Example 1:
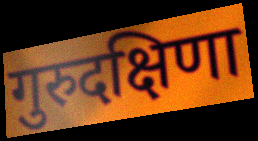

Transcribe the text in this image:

गुरुदक्षिणा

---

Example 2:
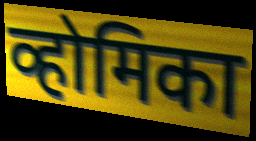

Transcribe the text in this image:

व्होमिका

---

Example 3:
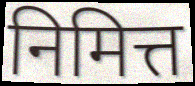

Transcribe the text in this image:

निमित्त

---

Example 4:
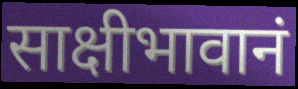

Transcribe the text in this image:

साक्षीभावानं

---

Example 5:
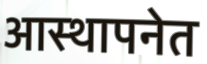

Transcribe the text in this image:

आस्थापनेत